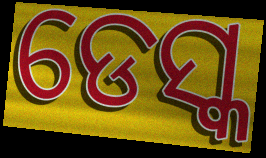
ଡେସ୍କ